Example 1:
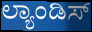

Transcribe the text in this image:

ಲ್ಯಾಂಡಿಸ್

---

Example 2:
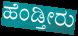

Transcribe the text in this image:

ಹೆಂಡ್ತೀರು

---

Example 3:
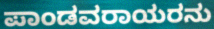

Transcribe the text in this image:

ಪಾಂಡವರಾಯರನು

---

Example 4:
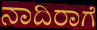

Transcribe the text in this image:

ನಾದಿರಾಗೆ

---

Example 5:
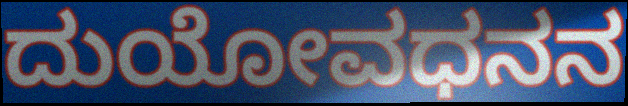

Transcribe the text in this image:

ದುಯೋವಧನನ